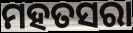
ମହତସରା